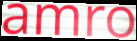
amro